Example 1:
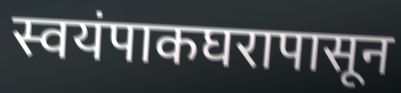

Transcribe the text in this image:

स्वयंपाकघरापासून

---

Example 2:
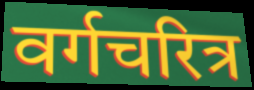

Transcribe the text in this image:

वर्गचरित्र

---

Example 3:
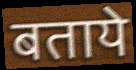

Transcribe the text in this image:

बताये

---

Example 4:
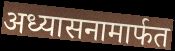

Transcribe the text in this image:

अध्यासनामार्फत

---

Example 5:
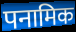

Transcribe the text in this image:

पनामिक